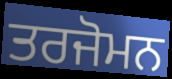
ਤਰਜੋਮਨ